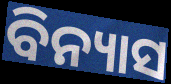
ବିନ୍ୟାସ